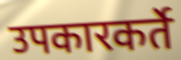
उपकारकर्ते